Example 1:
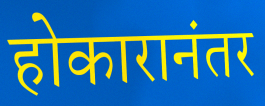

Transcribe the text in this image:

होकारानंतर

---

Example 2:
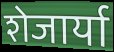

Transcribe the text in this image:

शेजार्या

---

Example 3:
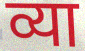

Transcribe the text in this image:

व्‍या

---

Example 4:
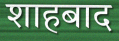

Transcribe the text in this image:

शाहबाद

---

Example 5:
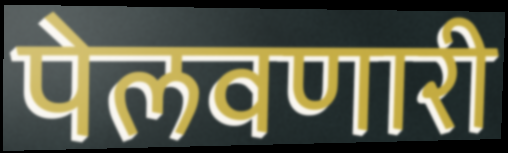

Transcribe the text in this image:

पेलवणारी